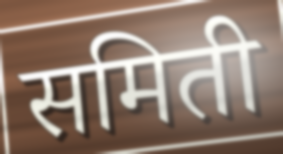
समिती